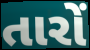
તારોં